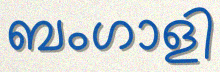
ബംഗാളി